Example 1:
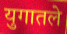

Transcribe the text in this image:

युगातले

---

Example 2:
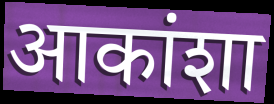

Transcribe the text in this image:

आकांशा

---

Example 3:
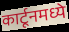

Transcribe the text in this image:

कार्टूनमध्ये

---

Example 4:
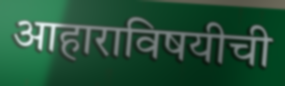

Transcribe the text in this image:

आहाराविषयीची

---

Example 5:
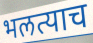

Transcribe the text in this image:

भलत्याच